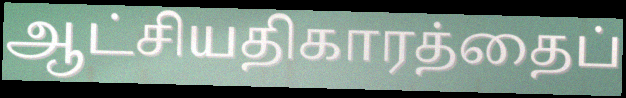
ஆட்சியதிகாரத்தைப்